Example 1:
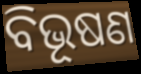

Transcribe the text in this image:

ବିଭୂଷଣ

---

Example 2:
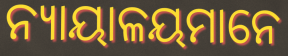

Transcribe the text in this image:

ନ୍ୟାୟାଳୟମାନେ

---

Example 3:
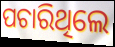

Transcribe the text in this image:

ପଚାରିଥିଲେ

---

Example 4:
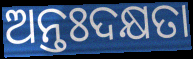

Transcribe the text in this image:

ଅନ୍ତଃଦକ୍ଷତା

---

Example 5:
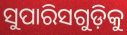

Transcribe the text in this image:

ସୁପାରିସଗୁଡ଼ିକୁ